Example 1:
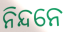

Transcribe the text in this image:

ନିନ୍ଦନେ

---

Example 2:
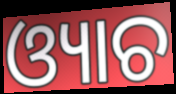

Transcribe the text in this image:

ଓ୍ୟାଚ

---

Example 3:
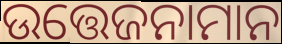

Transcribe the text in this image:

ଉତ୍ତେଜନାମାନ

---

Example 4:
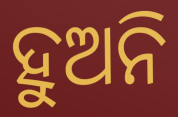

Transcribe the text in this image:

ହୁଅନି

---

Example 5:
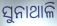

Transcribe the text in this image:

ସୁନାଥାଳି